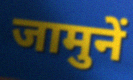
जामुनें